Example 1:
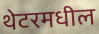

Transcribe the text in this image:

थेटरमधील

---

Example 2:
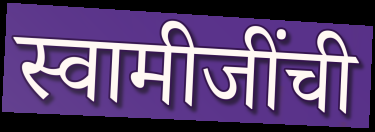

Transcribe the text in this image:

स्वामीजींची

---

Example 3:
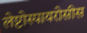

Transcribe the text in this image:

लेप्टोस्पायरोसीस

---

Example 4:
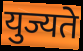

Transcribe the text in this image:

युज्यते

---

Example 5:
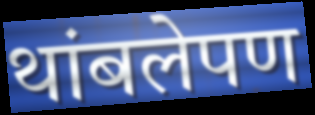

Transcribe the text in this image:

थांबलेपण